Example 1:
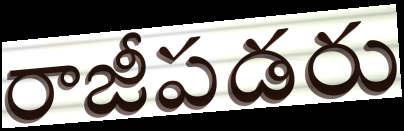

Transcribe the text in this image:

రాజీపడరు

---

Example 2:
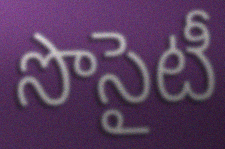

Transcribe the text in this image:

సొసైటీ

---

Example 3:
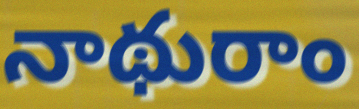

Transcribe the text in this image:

నాథురాం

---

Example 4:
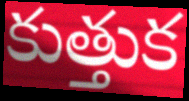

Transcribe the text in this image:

కుత్తుక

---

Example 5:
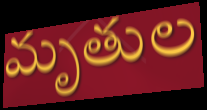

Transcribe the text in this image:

మృతుల